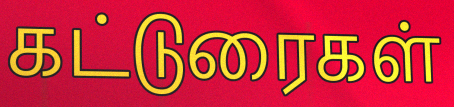
கட்டுரைகள்